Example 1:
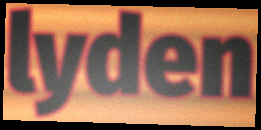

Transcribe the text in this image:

lyden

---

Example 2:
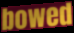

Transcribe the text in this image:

bowed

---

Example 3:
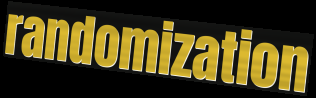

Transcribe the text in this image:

randomization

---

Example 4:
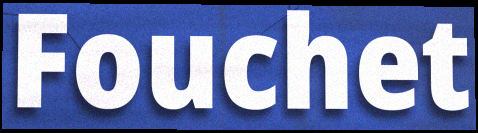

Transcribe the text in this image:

Fouchet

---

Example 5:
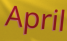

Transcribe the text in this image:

April